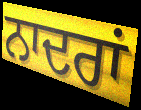
ਨਾਦਰਾਂ